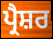
ਪ੍ਰੈਸ਼ਰ